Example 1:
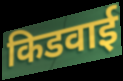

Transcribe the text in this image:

किडवाई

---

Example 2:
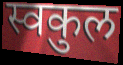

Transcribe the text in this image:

स्वकुल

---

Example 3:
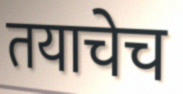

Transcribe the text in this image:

तयाचेच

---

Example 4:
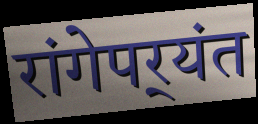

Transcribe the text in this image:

रांगेपर्यंत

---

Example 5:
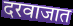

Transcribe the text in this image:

दरवाजात